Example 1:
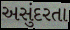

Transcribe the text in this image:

અસુંદરતા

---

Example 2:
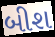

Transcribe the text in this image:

બીશ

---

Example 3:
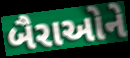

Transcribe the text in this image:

બૈરાઓને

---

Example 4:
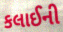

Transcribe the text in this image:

કલાઈની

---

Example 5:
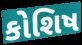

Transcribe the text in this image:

કોશિષ